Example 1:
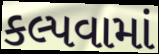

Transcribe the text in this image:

કલ્પવામાં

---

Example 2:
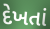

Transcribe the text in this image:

દેખતાં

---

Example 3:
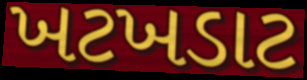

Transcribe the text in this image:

ખટખડાટ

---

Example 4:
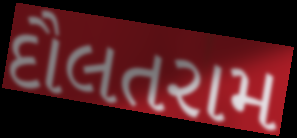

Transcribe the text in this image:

દૌલતરામ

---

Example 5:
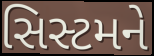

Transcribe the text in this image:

સિસ્ટમને